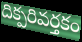
దిక్పరివర్తకం